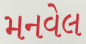
મનવેલ